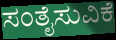
ಸಂತೈಸುವಿಕೆ